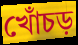
খোঁচড়